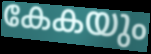
കേകയും